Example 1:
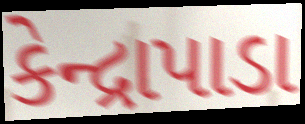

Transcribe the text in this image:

કેન્દ્રાપાડા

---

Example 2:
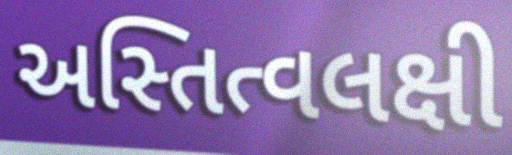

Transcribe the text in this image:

અસ્તિત્વલક્ષી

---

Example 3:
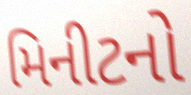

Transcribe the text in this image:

મિનીટનો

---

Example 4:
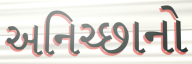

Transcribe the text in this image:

અનિચ્છાનો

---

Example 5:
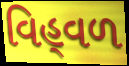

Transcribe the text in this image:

વિહ્‌વળ